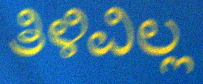
ತಿಳಿವಿಲ್ಲ